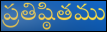
ప్రతిష్ఠితము